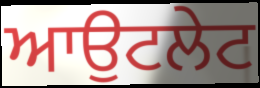
ਆਉਟਲੇਟ